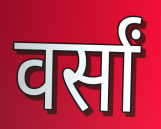
वर्सां